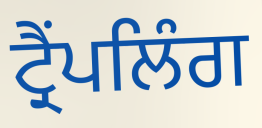
ਟ੍ਰੈਂਪਲਿੰਗ